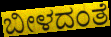
ಬೀಳದಂತೆ